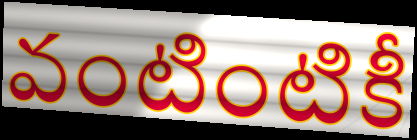
వంటింటికీ